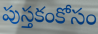
పుస్తకంకోసం